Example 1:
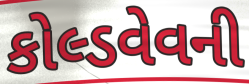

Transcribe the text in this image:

કોલ્ડવેવની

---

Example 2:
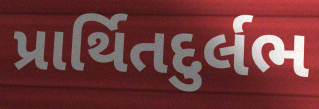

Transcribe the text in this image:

પ્રાર્થિતદુર્લભ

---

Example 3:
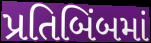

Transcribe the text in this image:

પ્રતિબિંબમાં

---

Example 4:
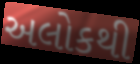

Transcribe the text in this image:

અલોકથી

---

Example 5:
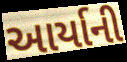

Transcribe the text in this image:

આર્યાની